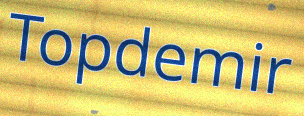
Topdemir